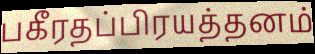
பகீரதப்பிரயத்தனம்